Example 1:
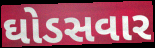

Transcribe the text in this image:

ઘોડસવાર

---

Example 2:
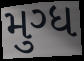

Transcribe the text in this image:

મુગ્ધ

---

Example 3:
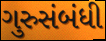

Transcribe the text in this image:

ગુરુસંબંધી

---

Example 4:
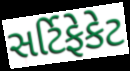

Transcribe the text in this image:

સર્ટિફેકેટ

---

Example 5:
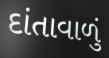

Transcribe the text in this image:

દાંતાવાળું